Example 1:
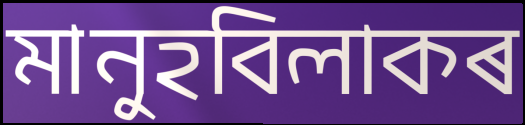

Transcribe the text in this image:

মানুহবিলাকৰ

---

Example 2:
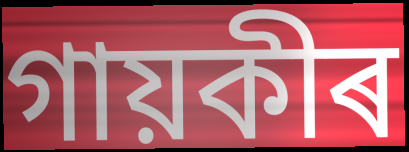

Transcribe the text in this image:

গায়কীৰ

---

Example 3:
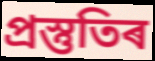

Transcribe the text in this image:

প্ৰস্তুতিৰ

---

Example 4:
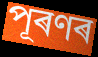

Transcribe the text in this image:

পূৰণৰ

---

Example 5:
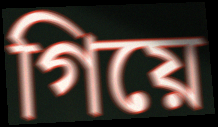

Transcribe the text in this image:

গিয়ে